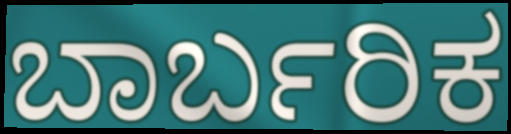
ಬಾರ್ಬರಿಕ